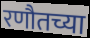
रणौतच्या